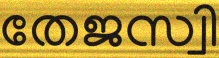
തേജസ്വി